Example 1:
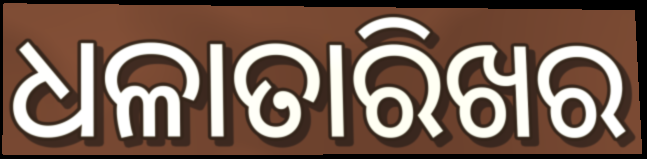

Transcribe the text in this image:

ଧଳାତାରିଖର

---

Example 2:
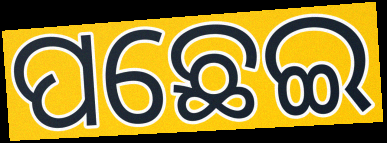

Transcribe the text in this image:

ପଛେଇ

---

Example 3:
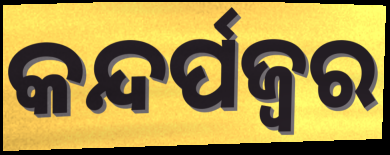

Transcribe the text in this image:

କନ୍ଦର୍ପଜ୍ବର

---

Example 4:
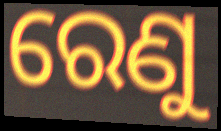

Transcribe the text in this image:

ରେଣୁ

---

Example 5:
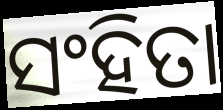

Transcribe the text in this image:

ସଂହିତା